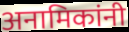
अनामिकांनी